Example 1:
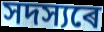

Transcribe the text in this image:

সদস্যৰে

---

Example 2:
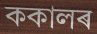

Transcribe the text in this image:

ককালৰ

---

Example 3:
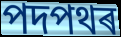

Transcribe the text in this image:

পদপথৰ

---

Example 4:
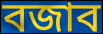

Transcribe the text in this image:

বজাব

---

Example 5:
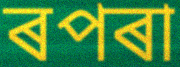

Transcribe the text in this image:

ৰপৰা